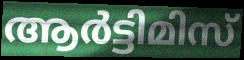
ആർട്ടിമിസ്